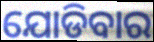
ଯୋଡିବାର